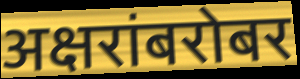
अक्षरांबरोबर